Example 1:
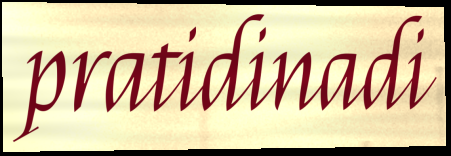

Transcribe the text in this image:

pratidinadi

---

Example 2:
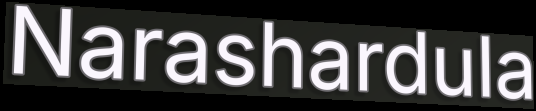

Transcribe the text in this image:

Narashardula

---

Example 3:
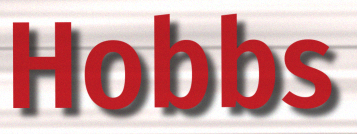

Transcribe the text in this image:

Hobbs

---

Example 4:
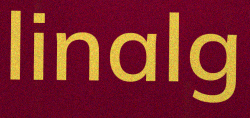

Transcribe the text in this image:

linalg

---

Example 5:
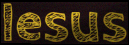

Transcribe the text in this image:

Iesus